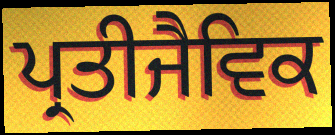
ਪ੍ਰਤੀਜੈਵਿਕ